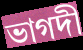
ভাগদী